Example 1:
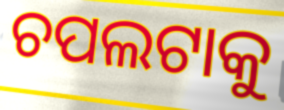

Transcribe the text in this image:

ଚପଲଟାକୁ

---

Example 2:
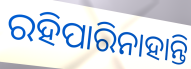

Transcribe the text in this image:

ରହିପାରିନାହାନ୍ତି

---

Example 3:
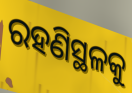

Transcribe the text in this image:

ରହଣିସ୍ଥଳକୁ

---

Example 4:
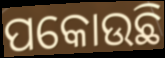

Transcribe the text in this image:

ପକୋଉଛି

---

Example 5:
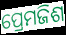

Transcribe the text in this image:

ପ୍ରେମଜିଶ